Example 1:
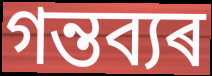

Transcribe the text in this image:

গন্তব্যৰ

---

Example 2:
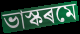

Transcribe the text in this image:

ভাস্কৰমে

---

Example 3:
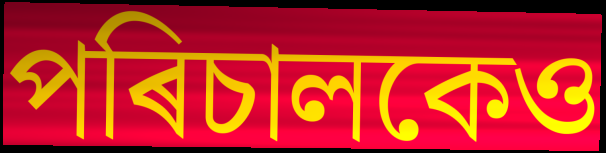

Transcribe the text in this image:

পৰিচালকেও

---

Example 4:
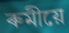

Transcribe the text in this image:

ৰুমীয়ে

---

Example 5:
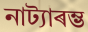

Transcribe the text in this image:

নাট্যাৰম্ভ